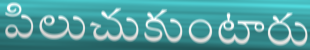
పిలుచుకుంటారు